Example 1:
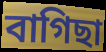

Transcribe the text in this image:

বাগিছা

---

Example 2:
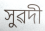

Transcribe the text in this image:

সুৱদী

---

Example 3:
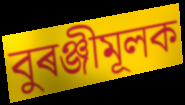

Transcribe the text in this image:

বুৰঞ্জীমূলক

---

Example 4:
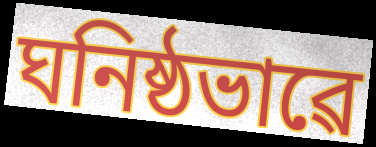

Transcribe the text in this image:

ঘনিষ্ঠভাৱে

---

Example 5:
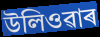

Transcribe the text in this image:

উলিওৱাৰ